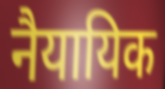
नैयायिक